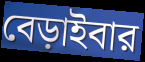
বেড়াইবার